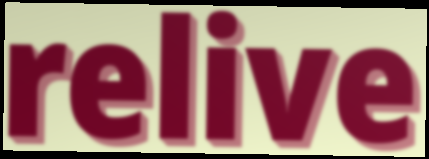
relive